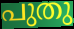
പുതു